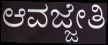
ಆವಜ್ಜೇತಿ